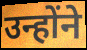
उन्होंने